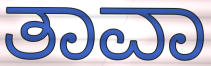
ತಾವಾ